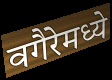
वगैरेमध्ये